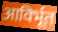
आविर्भूत